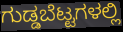
ಗುಡ್ಡಬೆಟ್ಟಗಳಲ್ಲಿ